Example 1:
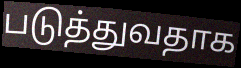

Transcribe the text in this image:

படுத்துவதாக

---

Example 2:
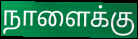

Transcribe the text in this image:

நாளைக்கு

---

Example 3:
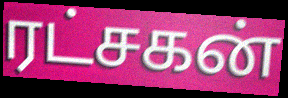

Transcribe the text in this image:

ரட்சகன்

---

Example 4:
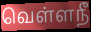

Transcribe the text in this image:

வெள்ளநீ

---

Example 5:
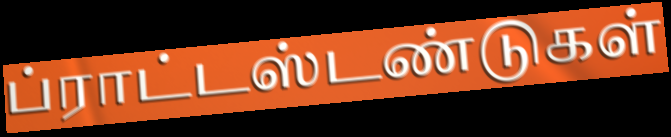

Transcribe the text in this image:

ப்ராட்டஸ்டண்டுகள்